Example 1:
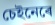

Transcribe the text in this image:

চেইনেৰে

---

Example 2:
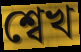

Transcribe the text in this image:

শ্বেখ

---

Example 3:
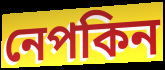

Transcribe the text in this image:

নেপকিন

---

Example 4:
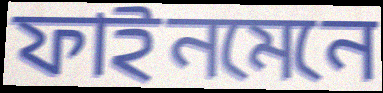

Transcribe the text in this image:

ফাইনমেনে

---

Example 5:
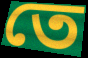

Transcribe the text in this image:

তে